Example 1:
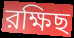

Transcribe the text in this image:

রক্ষিছ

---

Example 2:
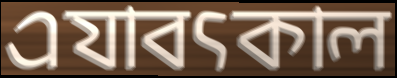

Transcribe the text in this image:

এযাবৎকাল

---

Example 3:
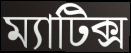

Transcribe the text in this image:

ম্যাটিক্স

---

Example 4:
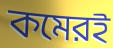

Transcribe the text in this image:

কমেরই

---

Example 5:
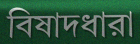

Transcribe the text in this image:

বিষাদধারা